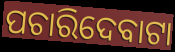
ପଚାରିଦେବାଟା